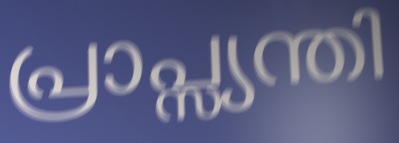
പ്രാപ്സ്യന്തി